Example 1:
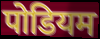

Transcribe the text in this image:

पोडियम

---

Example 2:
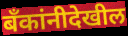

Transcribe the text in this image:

बँकांनीदेखील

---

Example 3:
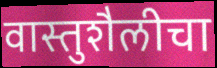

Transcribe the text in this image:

वास्तुशैलीचा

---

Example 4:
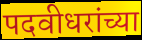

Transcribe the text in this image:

पदवीधरांच्या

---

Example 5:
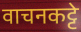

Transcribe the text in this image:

वाचनकट्टे